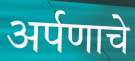
अर्पणाचे